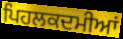
ਪਿਹਲਕਦਮੀਆਂ